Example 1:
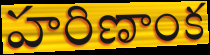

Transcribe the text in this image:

హరిణాంక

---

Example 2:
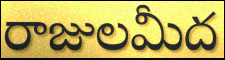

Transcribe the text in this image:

రాజులమీద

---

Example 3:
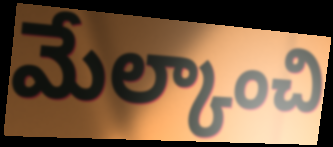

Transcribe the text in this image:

మేల్కాంచి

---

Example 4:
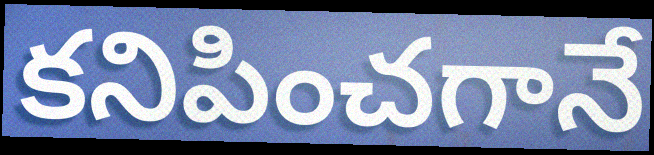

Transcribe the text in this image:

కనిపించగానే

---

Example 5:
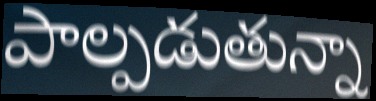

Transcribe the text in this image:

పాల్పడుతున్నా